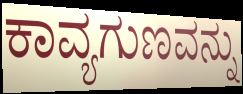
ಕಾವ್ಯಗುಣವನ್ನು